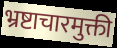
भ्रष्टाचारमुक्ती